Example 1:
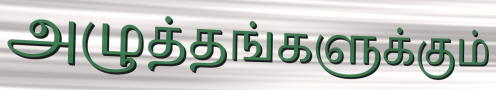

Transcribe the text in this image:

அழுத்தங்களுக்கும்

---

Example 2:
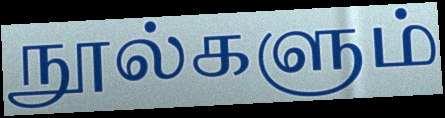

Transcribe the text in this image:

நூல்களும்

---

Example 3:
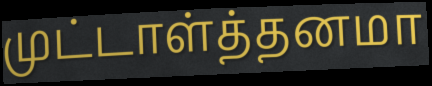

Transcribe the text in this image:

முட்டாள்த்தனமா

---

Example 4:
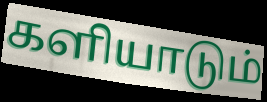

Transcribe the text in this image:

களியாடும்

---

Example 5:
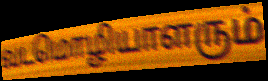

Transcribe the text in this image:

வடமொழியாளரும்